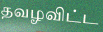
தவழவிட்ட